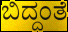
ಬಿದ್ದಂತೆ